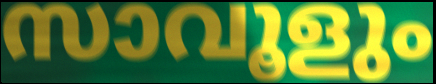
സാവൂളും